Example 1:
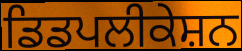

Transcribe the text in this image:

ਡਿਡਪਲੀਕੇਸ਼ਨ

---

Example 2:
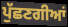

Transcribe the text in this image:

ਪੁੱਛਣਗੀਆਂ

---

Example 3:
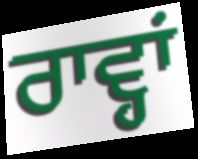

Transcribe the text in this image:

ਰਾਵ੍ਹਾਂ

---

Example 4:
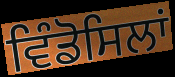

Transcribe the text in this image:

ਵਿੰਡੋਸਿਲਾਂ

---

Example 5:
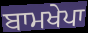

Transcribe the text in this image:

ਬਾਮਖੇਪਾ